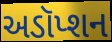
અડૉપ્શન